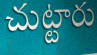
చుట్టారు